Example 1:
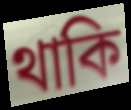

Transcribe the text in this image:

থাকি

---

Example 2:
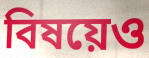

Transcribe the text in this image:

বিষয়েও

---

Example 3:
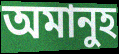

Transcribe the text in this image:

অমানুহ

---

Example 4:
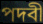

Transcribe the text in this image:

পদবী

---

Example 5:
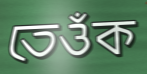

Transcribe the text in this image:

তেওঁক